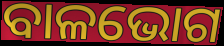
ବାଳଭୋଗ